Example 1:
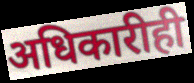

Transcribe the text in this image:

अधिकारीही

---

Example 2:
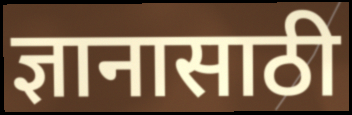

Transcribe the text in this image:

ज्ञानासाठी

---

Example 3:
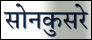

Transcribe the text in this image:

सोनकुसरे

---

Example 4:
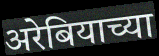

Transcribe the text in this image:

अरेबियाच्या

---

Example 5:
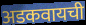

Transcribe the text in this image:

अडकवायची